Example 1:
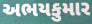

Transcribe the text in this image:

અભયકુમાર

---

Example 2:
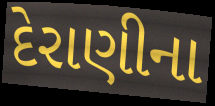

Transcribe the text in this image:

દેરાણીના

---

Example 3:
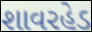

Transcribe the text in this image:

શાવરહેડ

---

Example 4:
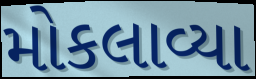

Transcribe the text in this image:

મોકલાવ્યા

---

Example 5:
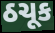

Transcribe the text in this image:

ઠચૂક